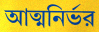
আত্মনির্ভর